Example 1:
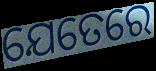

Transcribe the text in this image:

ଯେତେରେ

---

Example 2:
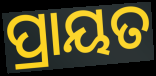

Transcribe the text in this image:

ପ୍ରାୟତ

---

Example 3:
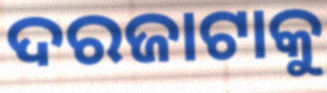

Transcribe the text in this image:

ଦରଜାଟାକୁ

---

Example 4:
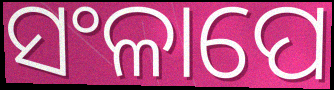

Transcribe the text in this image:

ସଂଳାପେ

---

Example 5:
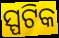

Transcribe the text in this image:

ସ୍ପଟିକ